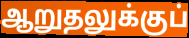
ஆறுதலுக்குப்